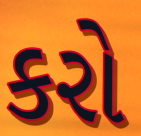
કરો